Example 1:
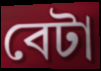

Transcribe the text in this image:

বেটা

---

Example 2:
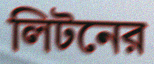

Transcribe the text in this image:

লিটনের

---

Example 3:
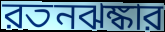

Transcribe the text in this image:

রতনঝঙ্কার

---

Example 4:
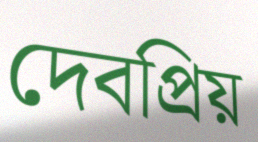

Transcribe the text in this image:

দেবপ্রিয়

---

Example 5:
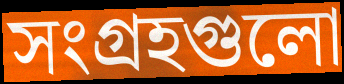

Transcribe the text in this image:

সংগ্রহগুলো